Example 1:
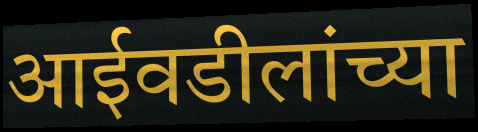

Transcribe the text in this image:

आईवडीलांच्या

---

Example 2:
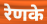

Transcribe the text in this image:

रेणके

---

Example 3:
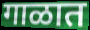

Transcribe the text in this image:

गाळात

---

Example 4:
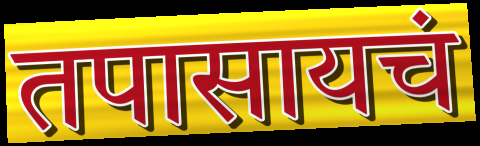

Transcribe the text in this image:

तपासायचं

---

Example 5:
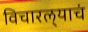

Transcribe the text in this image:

विचारल्याचं